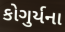
કોગુર્યના